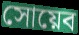
সোয়েব